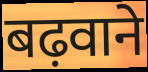
बढ़वाने